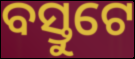
ବସ୍ତୁଟେ